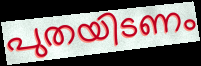
പുതയിടണം